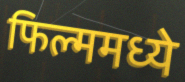
फिल्ममध्ये